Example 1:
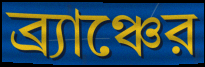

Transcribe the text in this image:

ব্র্যাঞ্চের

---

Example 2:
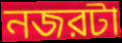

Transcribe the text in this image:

নজরটা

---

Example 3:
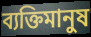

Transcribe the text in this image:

ব্যক্তিমানুষ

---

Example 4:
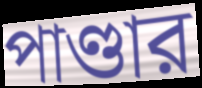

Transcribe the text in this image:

পাণ্ডার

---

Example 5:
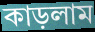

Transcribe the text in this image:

কাড়লাম